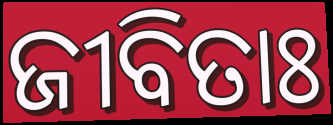
ଜୀବିତାଃ